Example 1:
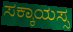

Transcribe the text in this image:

ಸಕ್ಕಾಯಸ್ಸ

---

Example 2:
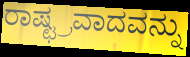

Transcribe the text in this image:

ರಾಷ್ಟ್ರವಾದವನ್ನು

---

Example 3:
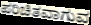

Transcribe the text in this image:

ಪರಿಚಿತವಾಗುವ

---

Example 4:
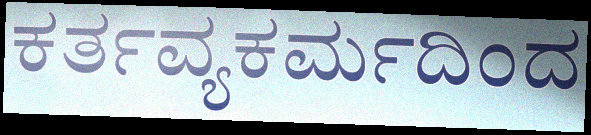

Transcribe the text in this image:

ಕರ್ತವ್ಯಕರ್ಮದಿಂದ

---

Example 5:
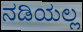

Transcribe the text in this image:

ನಡಿಯಲ್ಲ